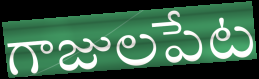
గాజులపేట